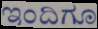
ಇಂದಿಗೂ